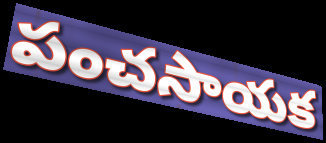
పంచసాయక